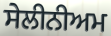
ਸੇਲੀਨੀਅਮ